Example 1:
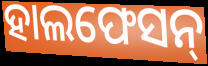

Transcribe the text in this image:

ହାଲଫେସନ୍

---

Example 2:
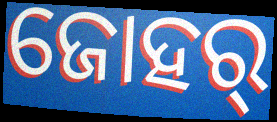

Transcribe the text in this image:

ଜୋହର୍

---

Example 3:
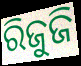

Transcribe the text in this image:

ରିଜୁଜି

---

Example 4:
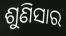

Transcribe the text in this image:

ଶୁଣିସାର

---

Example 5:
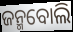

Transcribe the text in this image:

ଜନ୍ମବୋଲି